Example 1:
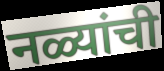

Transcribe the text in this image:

नळ्यांची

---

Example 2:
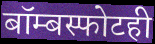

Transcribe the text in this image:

बॉम्बस्फोटही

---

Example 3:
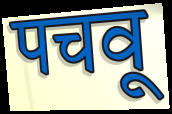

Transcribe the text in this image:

पचवू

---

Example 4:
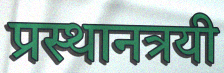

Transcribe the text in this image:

प्रस्थानत्रयी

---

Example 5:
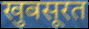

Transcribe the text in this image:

खुबसूरत